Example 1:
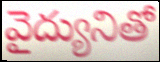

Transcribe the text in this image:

వైద్యునితో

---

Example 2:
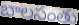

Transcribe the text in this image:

బాలసంతు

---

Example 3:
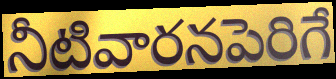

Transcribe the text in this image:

నీటివారనపెరిగే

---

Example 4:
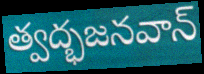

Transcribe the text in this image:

త్వద్భజనవాన్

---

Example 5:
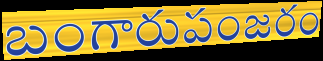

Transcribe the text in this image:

బంగారుపంజరం